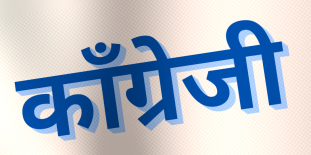
काँग्रेजी